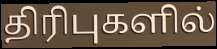
திரிபுகளில்